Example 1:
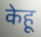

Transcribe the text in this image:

केहू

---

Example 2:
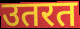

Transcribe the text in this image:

उतरत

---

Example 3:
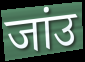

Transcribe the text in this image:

जांउ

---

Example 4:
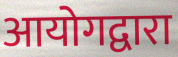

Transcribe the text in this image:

आयोगद्वारा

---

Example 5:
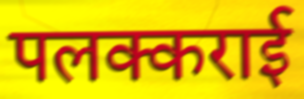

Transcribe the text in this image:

पलक्कराई